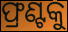
ଫ୍ରଣ୍ଟକୁ